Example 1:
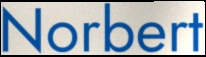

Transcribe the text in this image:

Norbert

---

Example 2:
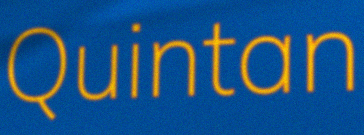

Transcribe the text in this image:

Quintan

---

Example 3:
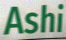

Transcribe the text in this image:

Ashi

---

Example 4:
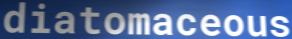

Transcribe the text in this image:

diatomaceous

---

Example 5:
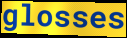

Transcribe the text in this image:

glosses